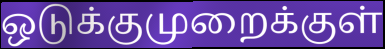
ஒடுக்குமுறைக்குள்